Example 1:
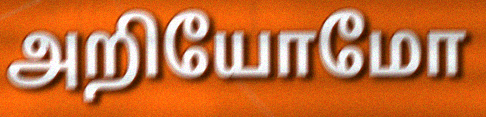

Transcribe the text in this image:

அறியோமோ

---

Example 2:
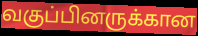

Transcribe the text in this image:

வகுப்பினருக்கான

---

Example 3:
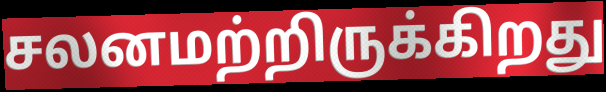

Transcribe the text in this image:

சலனமற்றிருக்கிறது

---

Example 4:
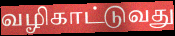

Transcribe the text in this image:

வழிகாட்டுவது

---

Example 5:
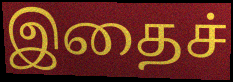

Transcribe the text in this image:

இதைச்